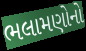
ભલામણોનો